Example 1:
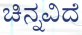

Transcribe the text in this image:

ಚಿನ್ನವಿದೆ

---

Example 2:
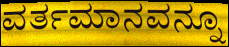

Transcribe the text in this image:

ವರ್ತಮಾನವನ್ನೂ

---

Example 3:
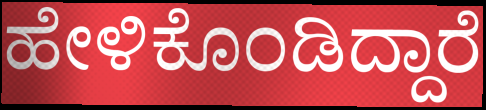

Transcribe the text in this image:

ಹೇಳಿಕೊಂಡಿದ್ದಾರೆ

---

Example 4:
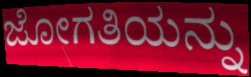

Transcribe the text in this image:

ಜೋಗತಿಯನ್ನು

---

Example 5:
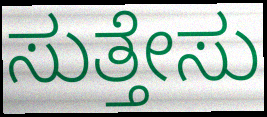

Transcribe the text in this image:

ಸುತ್ತೇಸು